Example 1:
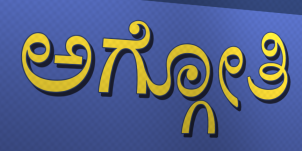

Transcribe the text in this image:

ಅಗ್ಗೋತಿ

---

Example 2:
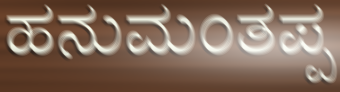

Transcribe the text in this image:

ಹನುಮಂತಪ್ಪ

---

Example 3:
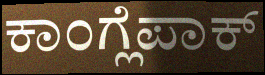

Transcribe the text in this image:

ಕಾಂಗ್ಲೆಪಾಕ್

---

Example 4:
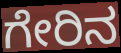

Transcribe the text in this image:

ಗೇರಿನ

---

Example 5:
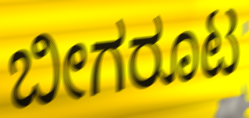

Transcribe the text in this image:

ಬೀಗರೂಟ